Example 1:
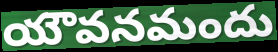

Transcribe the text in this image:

యౌవనమందు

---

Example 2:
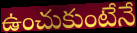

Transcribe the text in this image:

ఉంచుకుంటేనే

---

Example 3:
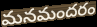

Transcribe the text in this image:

మనమందరం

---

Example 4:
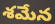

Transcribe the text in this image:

శమేన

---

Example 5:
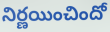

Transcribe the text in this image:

నిర్ణయించిందో